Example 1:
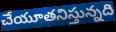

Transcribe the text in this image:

చేయూతనిస్తున్నది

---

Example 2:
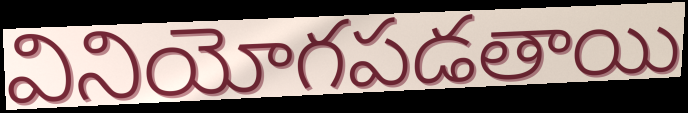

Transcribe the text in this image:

వినియోగపడతాయి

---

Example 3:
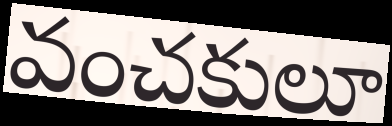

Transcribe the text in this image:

వంచకులూ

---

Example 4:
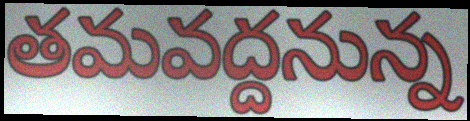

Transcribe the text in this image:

తమవద్దనున్న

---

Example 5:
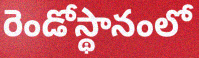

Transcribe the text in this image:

రెండోస్థానంలో